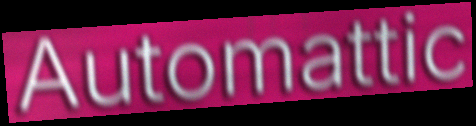
Automattic